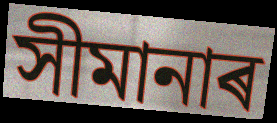
সীমানাৰ